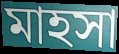
মাহসা